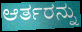
ಆರ್ತರನ್ನು